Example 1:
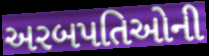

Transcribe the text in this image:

અરબપતિઓની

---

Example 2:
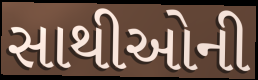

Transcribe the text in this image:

સાથીઓની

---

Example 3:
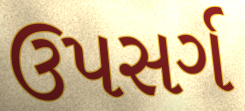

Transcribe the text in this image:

ઉપસર્ગ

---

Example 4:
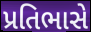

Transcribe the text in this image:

પ્રતિભાસે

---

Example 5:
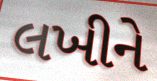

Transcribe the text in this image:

લખીને